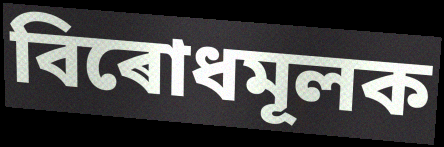
বিৰোধমূলক